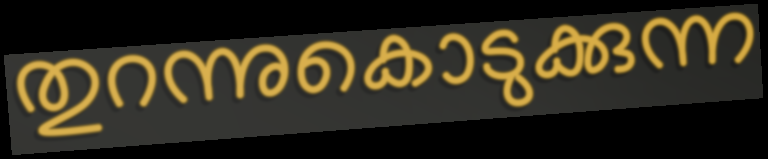
തുറന്നുകൊടുക്കുന്ന